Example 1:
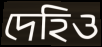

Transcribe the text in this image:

দেহিও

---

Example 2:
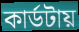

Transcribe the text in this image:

কার্ডটায়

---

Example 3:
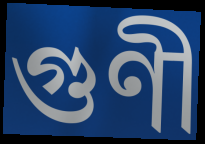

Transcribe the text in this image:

গুণী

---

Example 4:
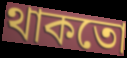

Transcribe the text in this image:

থাকতো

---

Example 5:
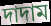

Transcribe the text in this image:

দাদাম